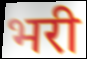
भरी